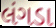
લંગડા